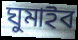
ঘুমাইব